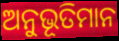
ଅନୁଭୂତିମାନ